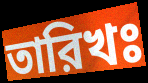
তারিখঃ